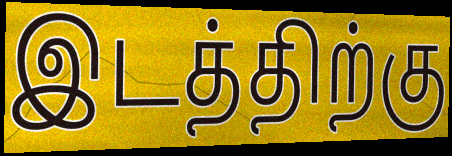
இடத்திற்கு